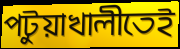
পটুয়াখালীতেই